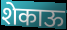
शेकाऊ